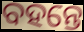
ବହନ୍ତେ